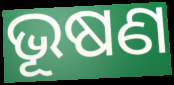
ଭୂଷଣ